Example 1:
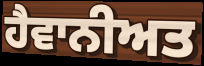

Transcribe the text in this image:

ਹੈਵਾਨੀਅਤ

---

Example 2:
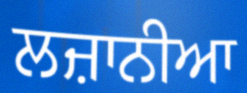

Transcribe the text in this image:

ਲਜ਼ਾਨੀਆ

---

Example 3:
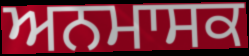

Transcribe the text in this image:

ਅਨਮਾਸਕ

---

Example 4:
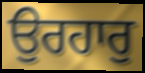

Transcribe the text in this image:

ਉਰਹਾਰੁ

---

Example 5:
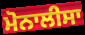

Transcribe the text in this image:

ਮੋਨਾਲੀਸਾ